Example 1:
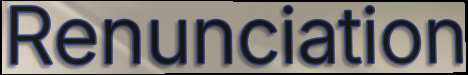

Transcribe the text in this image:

Renunciation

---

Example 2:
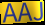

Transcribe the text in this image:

AAJ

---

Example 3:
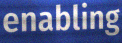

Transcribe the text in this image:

enabling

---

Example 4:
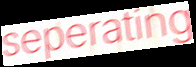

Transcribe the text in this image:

seperating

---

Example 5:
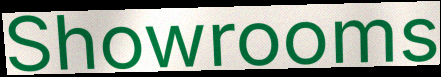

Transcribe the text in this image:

Showrooms